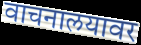
वाचनालयावर